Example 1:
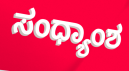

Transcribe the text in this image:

ಸಂಧ್ಯಾಂಶ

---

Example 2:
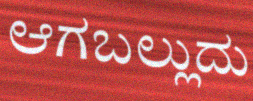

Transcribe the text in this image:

ಆಗಬಲ್ಲುದು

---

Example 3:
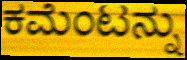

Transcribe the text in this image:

ಕಮೆಂಟನ್ನು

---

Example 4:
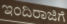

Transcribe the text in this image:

ಇಂದಿರಾಜಿಗೆ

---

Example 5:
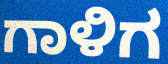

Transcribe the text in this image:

ಗಾಳಿಗ